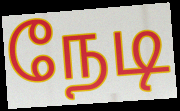
நேடி